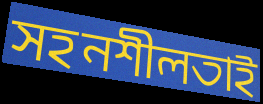
সহনশীলতাই